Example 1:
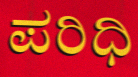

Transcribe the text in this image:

ಪರಿಧಿ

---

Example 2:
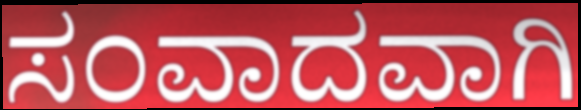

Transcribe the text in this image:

ಸಂವಾದವಾಗಿ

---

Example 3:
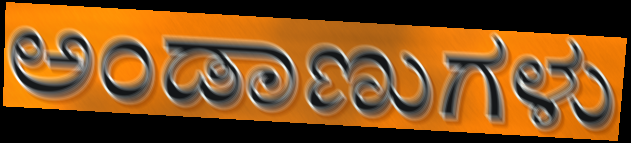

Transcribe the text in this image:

ಅಂಡಾಣುಗಳು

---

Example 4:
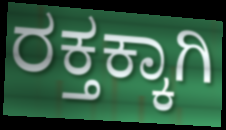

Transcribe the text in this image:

ರಕ್ತಕ್ಕಾಗಿ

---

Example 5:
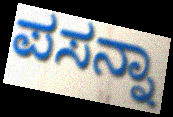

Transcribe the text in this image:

ಪಸನ್ನಾ